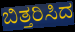
ಬಿತ್ತರಿಸಿದ